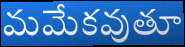
మమేకవుతూ